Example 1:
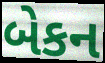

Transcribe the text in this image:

બેકન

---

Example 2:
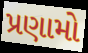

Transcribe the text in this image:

પ્રણામો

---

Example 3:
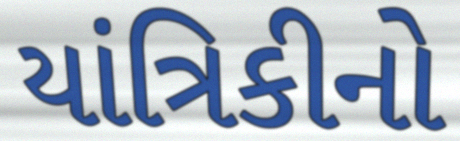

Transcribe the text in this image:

યાંત્રિકીનો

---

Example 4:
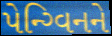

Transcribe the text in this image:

પેન્ગ્વિનને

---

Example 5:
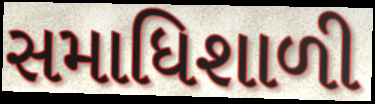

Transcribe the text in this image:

સમાધિશાળી